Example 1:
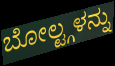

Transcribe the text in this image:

ಬೋಲ್ಟ್ಗಳನ್ನು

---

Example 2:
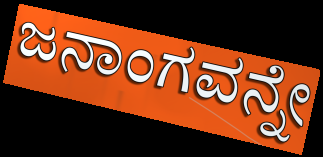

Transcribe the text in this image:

ಜನಾಂಗವನ್ನೇ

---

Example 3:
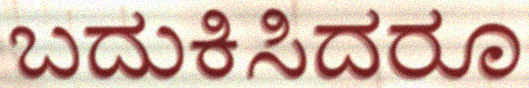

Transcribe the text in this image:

ಬದುಕಿಸಿದರೂ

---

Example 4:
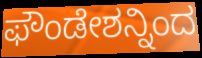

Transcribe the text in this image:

ಫೌಂಡೇಶನ್ನಿಂದ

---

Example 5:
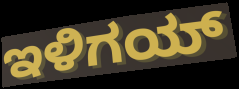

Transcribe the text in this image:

ಇಳಿಗಯ್